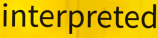
interpreted